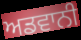
ਅਡਵਾਨੀ